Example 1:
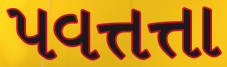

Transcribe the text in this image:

પવત્તત્તા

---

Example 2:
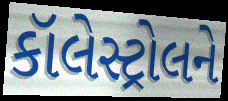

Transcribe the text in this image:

કૉલેસ્ટ્રોલને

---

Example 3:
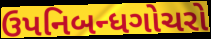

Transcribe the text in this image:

ઉપનિબન્ધગોચરો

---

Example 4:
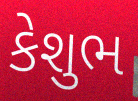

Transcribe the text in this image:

કેશુભ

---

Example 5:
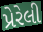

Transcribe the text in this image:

પ્રેરેલી